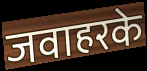
जवाहरके